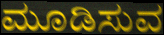
ಮೂಡಿಸುವ